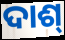
ଦାଶ୍